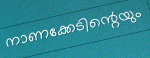
നാണക്കേടിന്റെയും